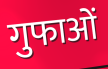
गुफाओं